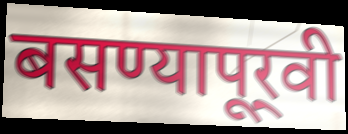
बसण्यापूर्वी